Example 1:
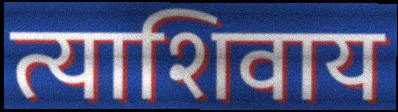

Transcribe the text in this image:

त्याशिवाय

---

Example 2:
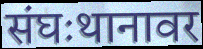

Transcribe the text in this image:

संघःथानावर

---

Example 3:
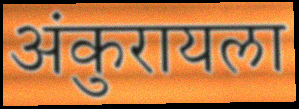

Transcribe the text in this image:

अंकुरायला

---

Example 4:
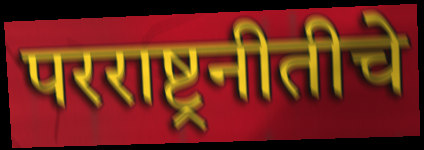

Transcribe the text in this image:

परराष्ट्रनीतीचे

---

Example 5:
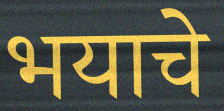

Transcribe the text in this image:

भयाचे